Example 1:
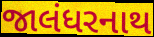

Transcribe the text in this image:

જાલંધરનાથ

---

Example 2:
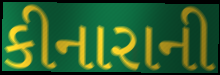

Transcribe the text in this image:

કીનારાની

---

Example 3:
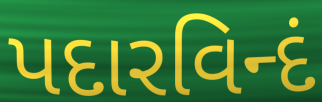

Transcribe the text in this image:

પદારવિન્દં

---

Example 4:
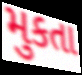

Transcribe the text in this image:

મુકતા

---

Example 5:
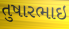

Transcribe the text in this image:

તુષારભાઇ